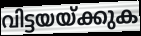
വിട്ടയയ്ക്കുക